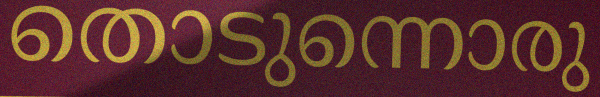
തൊടുന്നൊരു